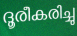
ദൂരീകരിച്ചു